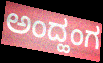
ಅಂದ್ಹಂಗ